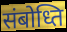
संबोध्ति